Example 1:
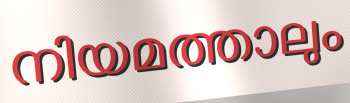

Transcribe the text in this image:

നിയമത്താലും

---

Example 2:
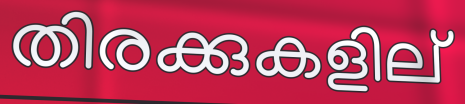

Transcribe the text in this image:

തിരക്കുകളില്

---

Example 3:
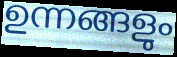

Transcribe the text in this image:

ഉന്നങ്ങളും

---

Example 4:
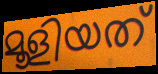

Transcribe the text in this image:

മൂളിയത്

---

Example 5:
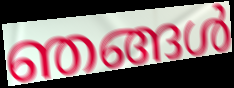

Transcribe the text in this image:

ഞങ്ങൾ